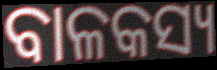
ବାଳକସ୍ୟ